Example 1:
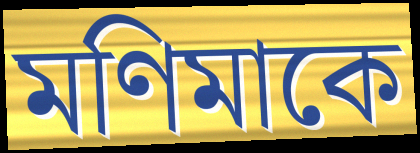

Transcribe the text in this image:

মণিমাকে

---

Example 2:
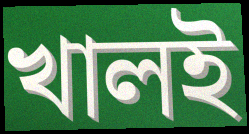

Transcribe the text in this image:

খালই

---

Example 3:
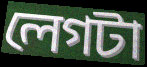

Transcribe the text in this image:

লেগটা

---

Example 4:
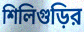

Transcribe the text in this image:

শিলিগুড়ির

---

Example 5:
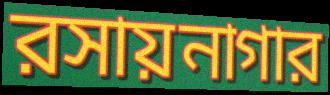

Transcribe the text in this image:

রসায়নাগার